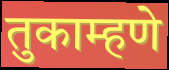
तुकाम्हणे